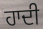
ਹਾਦੀ